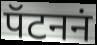
पॅटननं